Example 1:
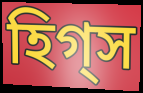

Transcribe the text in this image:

হিগ্স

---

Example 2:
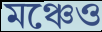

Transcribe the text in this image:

মঞ্চেও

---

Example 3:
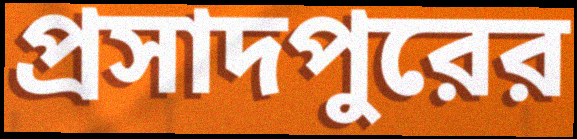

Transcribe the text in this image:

প্রসাদপুরের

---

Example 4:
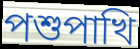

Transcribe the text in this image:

পশুপাখি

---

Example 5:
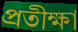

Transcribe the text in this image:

প্রতীক্ষা